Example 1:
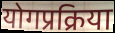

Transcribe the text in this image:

योगप्रक्रिया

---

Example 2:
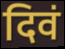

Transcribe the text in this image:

दिवं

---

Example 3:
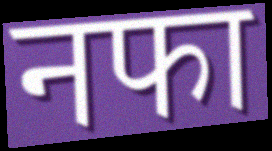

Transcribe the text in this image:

नफा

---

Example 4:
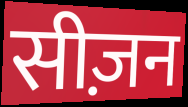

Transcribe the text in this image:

सीज़न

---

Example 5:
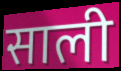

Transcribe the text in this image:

साली